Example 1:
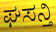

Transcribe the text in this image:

ಘಸನ್ತಿ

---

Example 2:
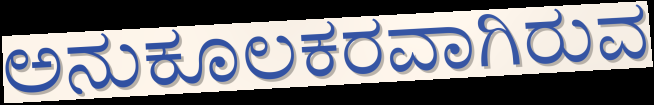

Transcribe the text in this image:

ಅನುಕೂಲಕರವಾಗಿರುವ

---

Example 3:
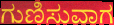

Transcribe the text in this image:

ಗುಣಿಸುವಾಗ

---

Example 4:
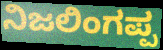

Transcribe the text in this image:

ನಿಜಲಿಂಗಪ್ಪ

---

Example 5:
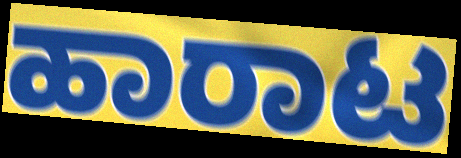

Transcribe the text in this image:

ಹಾರಾಟ